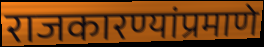
राजकारण्यांप्रमाणे